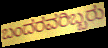
ಬಂದರವರಿಬ್ಬರು